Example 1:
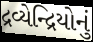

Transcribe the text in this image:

દ્રવ્યેન્દ્રિયોનું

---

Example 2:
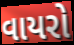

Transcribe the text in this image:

વાયરો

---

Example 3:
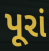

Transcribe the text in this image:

પૂરાં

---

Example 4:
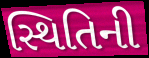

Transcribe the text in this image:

સ્થિતિની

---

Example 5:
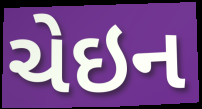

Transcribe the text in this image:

ચેઇન